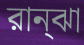
রান্ঝা